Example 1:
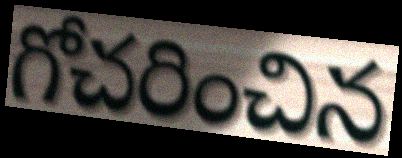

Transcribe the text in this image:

గోచరించిన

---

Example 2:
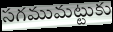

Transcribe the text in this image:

సగముమట్టుకు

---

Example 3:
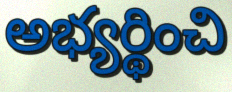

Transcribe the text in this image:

అభ్యర్థించి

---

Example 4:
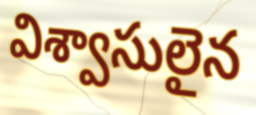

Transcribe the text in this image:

విశ్వాసులైన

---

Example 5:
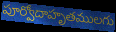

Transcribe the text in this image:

పూర్వోదాహృతములగు